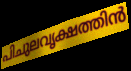
പിചുലവൃക്ഷത്തിൻ